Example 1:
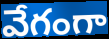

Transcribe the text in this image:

వేగంగా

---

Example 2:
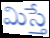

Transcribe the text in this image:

మిస్తే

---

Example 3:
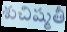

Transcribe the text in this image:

శుచిష్మతీ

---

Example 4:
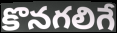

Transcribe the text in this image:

కొనగలిగే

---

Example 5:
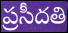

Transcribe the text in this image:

ప్రసీదతి